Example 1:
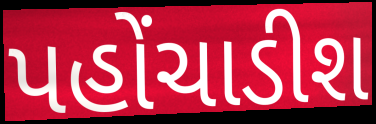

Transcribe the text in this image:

પહોંચાડીશ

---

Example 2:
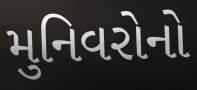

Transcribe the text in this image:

મુનિવરોનો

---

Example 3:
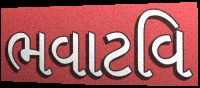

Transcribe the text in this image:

ભવાટવિ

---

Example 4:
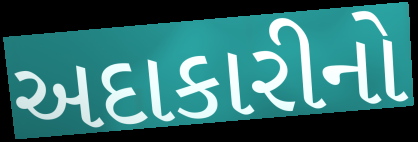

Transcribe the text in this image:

અદાકારીનો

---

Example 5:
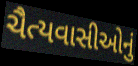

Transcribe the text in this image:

ચૈત્યવાસીઓનું